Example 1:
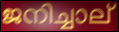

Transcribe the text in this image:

ജനിച്ചാല്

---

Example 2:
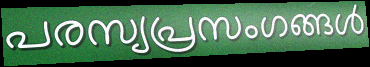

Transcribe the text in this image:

പരസ്യപ്രസംഗങ്ങൾ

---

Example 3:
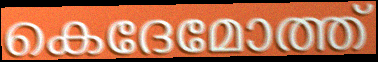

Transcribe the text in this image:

കെദേമോത്ത്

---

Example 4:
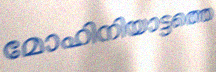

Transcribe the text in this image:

മോഹിനിയാട്ടത്തെ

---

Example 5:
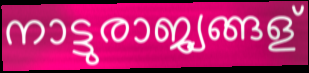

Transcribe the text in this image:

നാട്ടുരാജ്യങ്ങള്